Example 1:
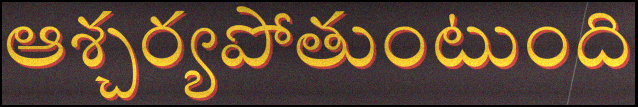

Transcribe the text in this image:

ఆశ్చర్యపోతుంటుంది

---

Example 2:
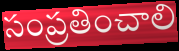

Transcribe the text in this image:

సంప్రతించాలి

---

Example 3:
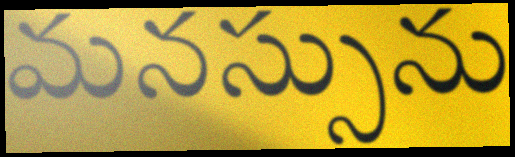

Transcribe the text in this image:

మనస్సును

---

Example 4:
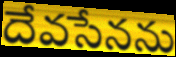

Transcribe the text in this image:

దేవసేనను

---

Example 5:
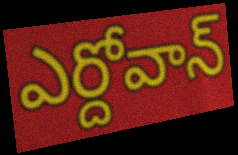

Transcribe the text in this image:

ఎర్దోవాన్